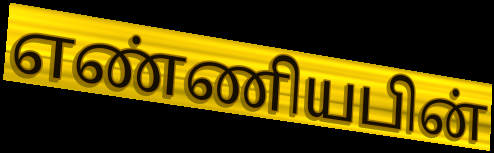
எண்ணியபின்